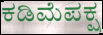
ಕಡಿಮೆಪಕ್ಷ